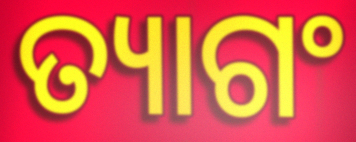
ତ୍ୟାଗଂ